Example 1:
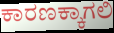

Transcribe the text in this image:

ಕಾರಣಕ್ಕಾಗಲಿ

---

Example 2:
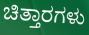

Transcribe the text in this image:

ಚಿತ್ತಾರಗಳು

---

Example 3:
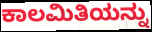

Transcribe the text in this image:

ಕಾಲಮಿತಿಯನ್ನು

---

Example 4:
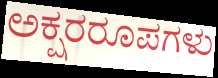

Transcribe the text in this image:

ಅಕ್ಷರರೂಪಗಳು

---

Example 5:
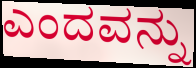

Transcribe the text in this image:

ಎಂದವನ್ನು